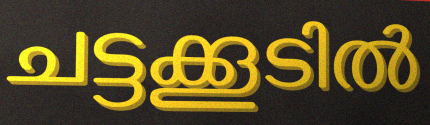
ചട്ടക്കൂടിൽ